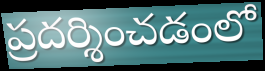
ప్రదర్శించడంలో